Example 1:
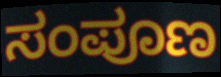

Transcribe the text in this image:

ಸಂಪೂಣ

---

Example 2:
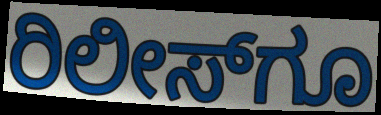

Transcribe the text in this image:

ರಿಲೀಸ್‌ಗೂ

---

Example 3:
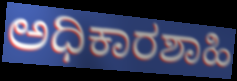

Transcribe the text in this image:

ಅಧಿಕಾರಶಾಹಿ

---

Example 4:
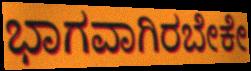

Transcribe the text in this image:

ಭಾಗವಾಗಿರಬೇಕೇ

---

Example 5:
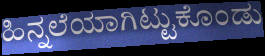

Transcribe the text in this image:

ಹಿನ್ನಲೆಯಾಗಿಟ್ಟುಕೊಂಡು